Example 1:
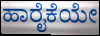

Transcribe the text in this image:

ಹಾರೈಕೆಯೇ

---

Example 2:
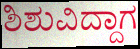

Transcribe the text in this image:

ಶಿಶುವಿದ್ದಾಗ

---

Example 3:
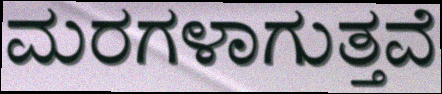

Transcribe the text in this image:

ಮರಗಳಾಗುತ್ತವೆ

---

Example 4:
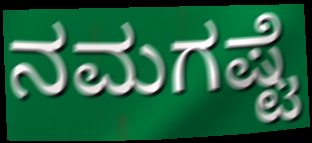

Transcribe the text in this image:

ನಮಗಷ್ಟೆ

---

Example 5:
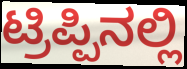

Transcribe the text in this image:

ಟ್ರಿಪ್ಪಿನಲ್ಲಿ